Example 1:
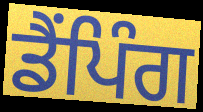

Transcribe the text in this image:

ਡੈਂਪਿੰਗ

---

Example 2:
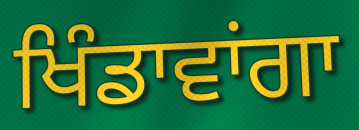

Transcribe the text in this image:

ਖਿੰਡਾਵਾਂਗਾ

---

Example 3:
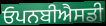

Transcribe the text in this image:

ਓਪਨਬੀਐਸਡੀ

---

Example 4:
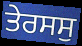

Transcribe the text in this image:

ਤੇਰਸਸੁ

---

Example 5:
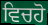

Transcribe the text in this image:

ਵਿਚਹੋ